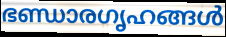
ഭണ്ഡാരഗൃഹങ്ങൾ